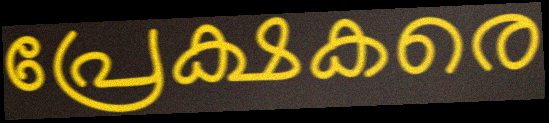
പ്രേക്ഷകരെ